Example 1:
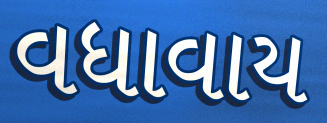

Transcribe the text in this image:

વધાવાય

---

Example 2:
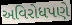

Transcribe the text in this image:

અવિરોધપણે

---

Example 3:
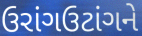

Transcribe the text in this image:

ઉરાંગઉટાંગને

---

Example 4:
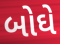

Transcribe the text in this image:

બોઘે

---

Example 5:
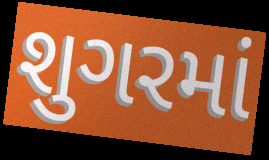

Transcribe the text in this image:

શુગરમાં